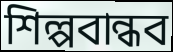
শিল্পবান্ধব